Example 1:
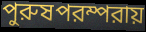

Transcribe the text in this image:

পুরুষপরম্পরায়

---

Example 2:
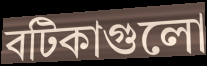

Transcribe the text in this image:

বটিকাগুলো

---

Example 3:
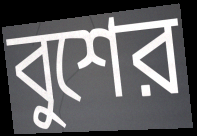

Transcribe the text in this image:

বুশের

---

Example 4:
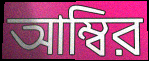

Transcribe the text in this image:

আম্বির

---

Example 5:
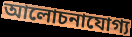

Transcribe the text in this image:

আলোচনাযোগ্য